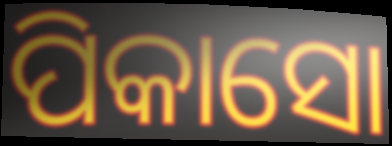
ପିକାସୋ